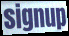
signup